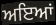
ਅਇਆਂ